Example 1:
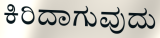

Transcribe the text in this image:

ಕಿರಿದಾಗುವುದು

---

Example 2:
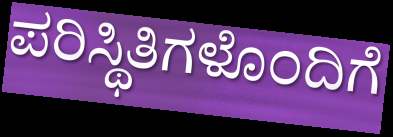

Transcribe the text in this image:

ಪರಿಸ್ಥಿತಿಗಳೊಂದಿಗೆ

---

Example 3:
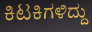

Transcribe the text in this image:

ಕಿಟಕಿಗಳಿದ್ದು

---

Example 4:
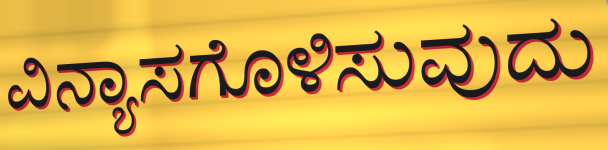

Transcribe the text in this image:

ವಿನ್ಯಾಸಗೊಳಿಸುವುದು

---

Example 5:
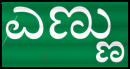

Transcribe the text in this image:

ಎಣ್ಣು